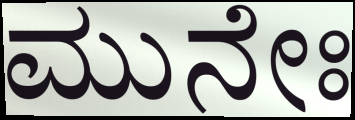
ಮುನೇಃ